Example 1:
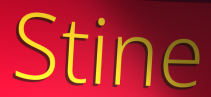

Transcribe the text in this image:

Stine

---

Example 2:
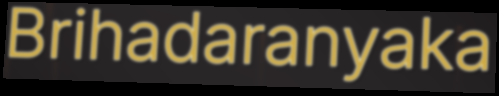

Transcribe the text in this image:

Brihadaranyaka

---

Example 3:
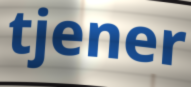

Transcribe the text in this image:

tjener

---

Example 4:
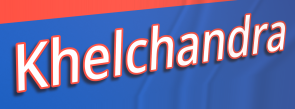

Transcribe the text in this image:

Khelchandra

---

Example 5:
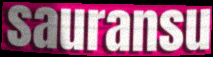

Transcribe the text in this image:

sauransu